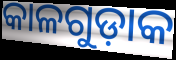
କାଳଗୁଡ଼ାକ